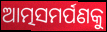
ଆତ୍ମସମର୍ପଣକୁ